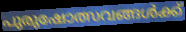
പുരുഷോത്സവങ്ങൾക്ക്